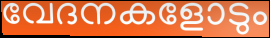
വേദനകളോടും